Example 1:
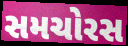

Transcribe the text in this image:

સમચોરસ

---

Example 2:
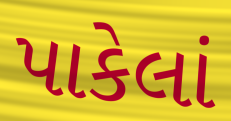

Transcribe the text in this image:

પાકેલાં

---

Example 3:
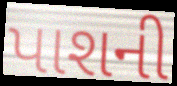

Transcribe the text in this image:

પાશની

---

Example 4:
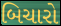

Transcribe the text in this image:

બિચારો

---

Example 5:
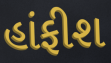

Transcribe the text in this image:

હાંફીશ